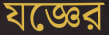
যজ্ঞের